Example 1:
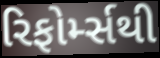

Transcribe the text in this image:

રિફોર્મ્સથી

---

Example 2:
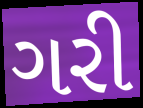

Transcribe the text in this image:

ગરી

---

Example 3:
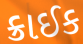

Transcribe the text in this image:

ક્રાઈક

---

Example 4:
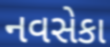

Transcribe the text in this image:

નવસેકા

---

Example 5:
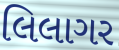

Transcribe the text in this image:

લિલાગર